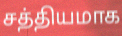
சத்தியமாக